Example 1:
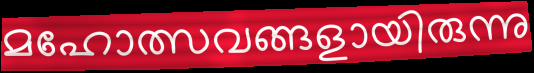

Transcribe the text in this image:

മഹോത്സവങ്ങളായിരുന്നു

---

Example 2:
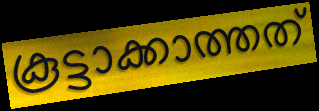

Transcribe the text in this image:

കൂട്ടാക്കാത്തത്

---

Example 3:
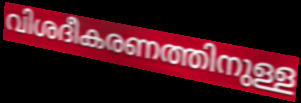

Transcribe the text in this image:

വിശദീകരണത്തിനുള്ള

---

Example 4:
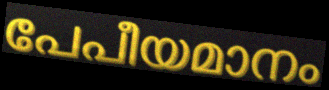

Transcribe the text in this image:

പേപീയമാനം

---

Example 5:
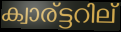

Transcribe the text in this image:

ക്വാര്ട്ടറില്